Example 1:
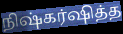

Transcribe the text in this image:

நிஷ்கர்ஷித்த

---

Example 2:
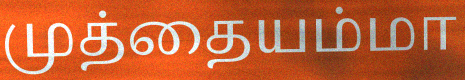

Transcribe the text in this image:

முத்தையம்மா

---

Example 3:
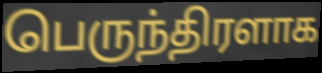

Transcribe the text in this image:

பெருந்திரளாக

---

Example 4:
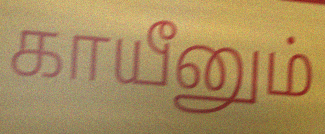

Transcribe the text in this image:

காயீனும்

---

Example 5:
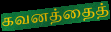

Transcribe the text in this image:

கவனத்தைத்